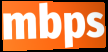
mbps